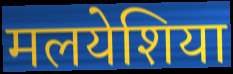
मलयेशिया